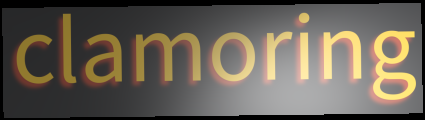
clamoring